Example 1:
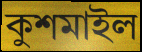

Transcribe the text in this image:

কুশমাইল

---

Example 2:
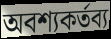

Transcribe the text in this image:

অবশ্যকর্তব্য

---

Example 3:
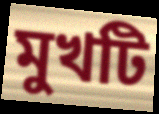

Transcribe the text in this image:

মুখটি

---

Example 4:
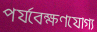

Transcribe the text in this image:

পর্যবেক্ষণযোগ্য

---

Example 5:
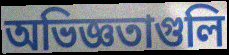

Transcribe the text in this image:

অভিজ্ঞতাগুলি